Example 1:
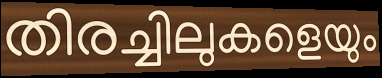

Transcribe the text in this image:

തിരച്ചിലുകളെയും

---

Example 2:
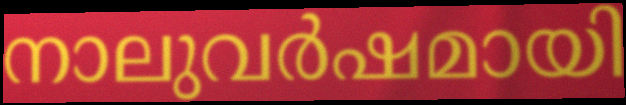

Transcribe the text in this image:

നാലുവർഷമായി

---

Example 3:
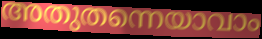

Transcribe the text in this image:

അതുതന്നെയാവാം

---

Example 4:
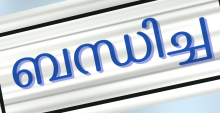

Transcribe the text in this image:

ബന്ധിച്ച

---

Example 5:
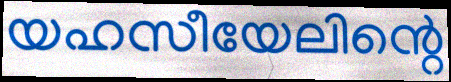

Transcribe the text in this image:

യഹസീയേലിന്റെ